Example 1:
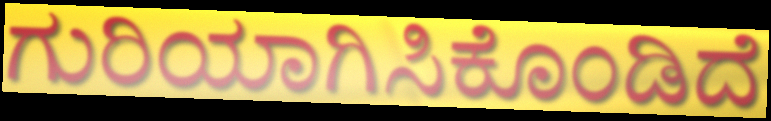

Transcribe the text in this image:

ಗುರಿಯಾಗಿಸಿಕೊಂಡಿದೆ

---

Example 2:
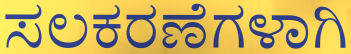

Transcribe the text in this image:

ಸಲಕರಣೆಗಳಾಗಿ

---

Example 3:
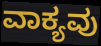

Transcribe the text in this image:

ವಾಕ್ಯವು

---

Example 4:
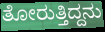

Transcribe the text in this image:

ತೋರುತ್ತಿದ್ದನು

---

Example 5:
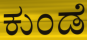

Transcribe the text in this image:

ಕುಂಡೆ